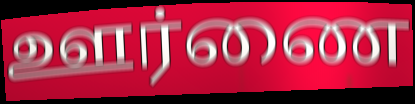
ஊர்ணை